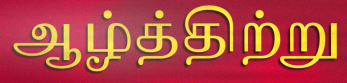
ஆழ்த்திற்று